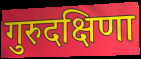
गुरुदक्षिणा